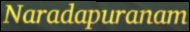
Naradapuranam